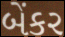
બેંકર